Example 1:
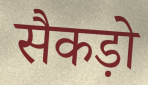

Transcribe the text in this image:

सैकड़ो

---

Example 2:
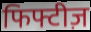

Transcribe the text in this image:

फिफ्टीज़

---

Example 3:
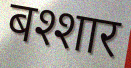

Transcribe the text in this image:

बश्शार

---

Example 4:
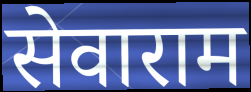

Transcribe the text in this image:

सेवाराम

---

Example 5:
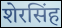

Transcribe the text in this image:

शेरसिंह